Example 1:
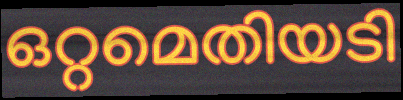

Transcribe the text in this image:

ഒറ്റമെതിയടി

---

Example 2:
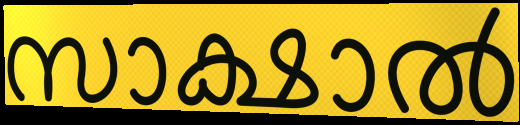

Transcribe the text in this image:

സാക്ഷാൽ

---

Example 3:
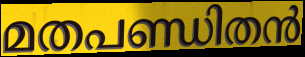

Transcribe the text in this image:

മതപണ്ഡിതൻ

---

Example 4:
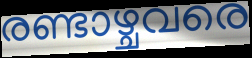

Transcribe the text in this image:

രണ്ടാഴ്ചവരെ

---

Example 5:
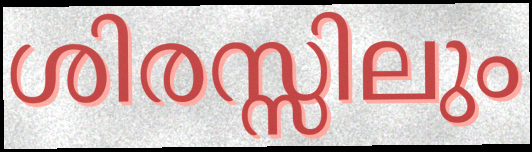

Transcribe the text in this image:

ശിരസ്സിലും